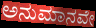
ಅನುಮಾನವೇ